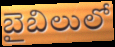
బైబిలులో